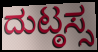
ದುಟ್ಠಸ್ಸ